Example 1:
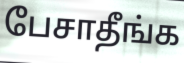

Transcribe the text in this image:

பேசாதீங்க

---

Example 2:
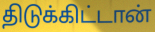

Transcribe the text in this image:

திடுக்கிட்டான்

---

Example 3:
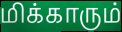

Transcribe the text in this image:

மிக்காரும்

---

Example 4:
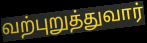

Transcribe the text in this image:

வற்புறுத்துவார்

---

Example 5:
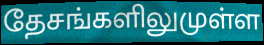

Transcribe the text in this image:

தேசங்களிலுமுள்ள